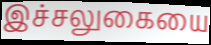
இச்சலுகையை